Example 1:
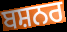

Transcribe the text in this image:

ਬਸ਼ਨਰ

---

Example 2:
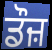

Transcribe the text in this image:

ਡੌਜ਼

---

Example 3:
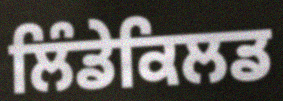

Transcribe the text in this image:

ਲਿੰਡੇਕਿਲਡ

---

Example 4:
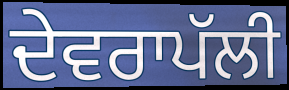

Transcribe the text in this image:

ਦੇਵਰਾਪੱਲੀ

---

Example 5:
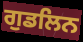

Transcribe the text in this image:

ਗੁਡਲਿਨ